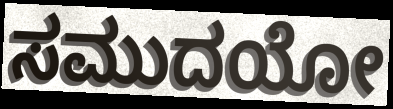
ಸಮುದಯೋ